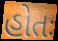
હોતઃ